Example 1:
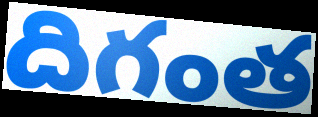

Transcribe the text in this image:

దిగంత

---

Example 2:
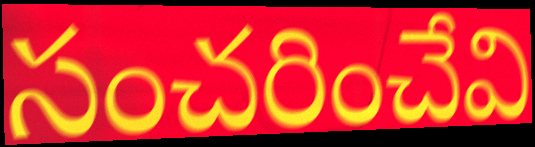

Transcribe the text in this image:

సంచరించేవి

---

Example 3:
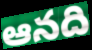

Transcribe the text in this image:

ఆనది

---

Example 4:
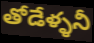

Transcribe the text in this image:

తోడేళ్ళనీ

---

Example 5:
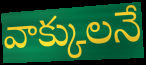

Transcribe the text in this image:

వాక్కులనే